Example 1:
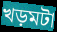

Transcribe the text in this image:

খড়মটা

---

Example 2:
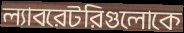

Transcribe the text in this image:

ল্যাবরেটরিগুলোকে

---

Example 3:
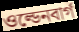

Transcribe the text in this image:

ওল্ডেনবার্গ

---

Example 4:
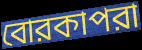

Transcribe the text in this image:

বোরকাপরা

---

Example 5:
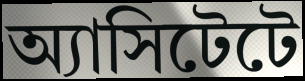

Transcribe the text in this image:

অ্যাসিটেটে